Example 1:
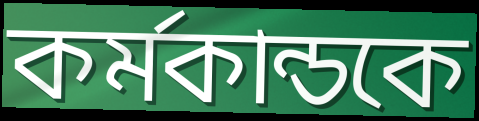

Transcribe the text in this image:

কর্মকান্ডকে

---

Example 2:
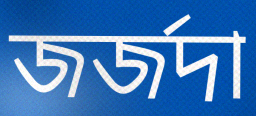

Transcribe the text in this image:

জর্জদা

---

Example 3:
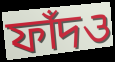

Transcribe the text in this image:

ফাঁদও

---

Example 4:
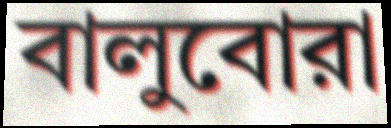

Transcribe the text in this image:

বালুবোরা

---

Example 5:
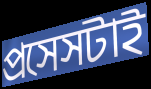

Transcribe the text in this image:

প্রসেসটাই